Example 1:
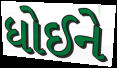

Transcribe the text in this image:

ધોઈને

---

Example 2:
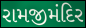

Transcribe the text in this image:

રામજીમંદિર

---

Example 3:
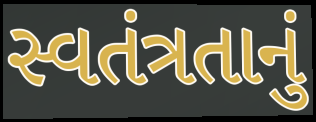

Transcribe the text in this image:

સ્વતંત્રતાનું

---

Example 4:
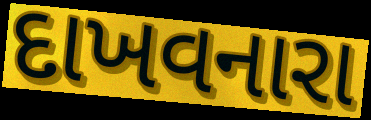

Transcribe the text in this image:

દાખવનારા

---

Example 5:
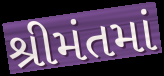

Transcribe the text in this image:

શ્રીમંતમાં